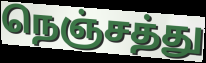
நெஞ்சத்து